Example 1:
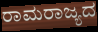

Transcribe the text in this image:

ರಾಮರಾಜ್ಯದ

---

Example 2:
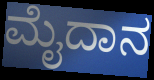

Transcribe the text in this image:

ಮೈದಾನ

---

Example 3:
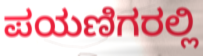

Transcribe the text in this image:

ಪಯಣಿಗರಲ್ಲಿ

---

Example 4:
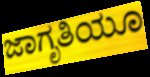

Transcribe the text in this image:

ಜಾಗೃತಿಯೂ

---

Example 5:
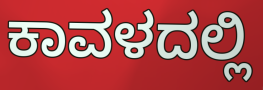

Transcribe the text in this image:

ಕಾವಳದಲ್ಲಿ